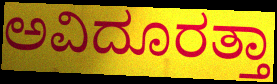
ಅವಿದೂರತ್ತಾ